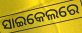
ସାଇକେଲରେ